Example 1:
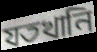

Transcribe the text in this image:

যতখানি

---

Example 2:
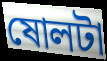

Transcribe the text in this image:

ষোলটা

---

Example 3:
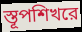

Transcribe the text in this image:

স্তূপশিখরে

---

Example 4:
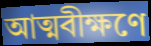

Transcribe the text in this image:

আত্মবীক্ষণে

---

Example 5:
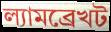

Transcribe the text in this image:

ল্যামব্রেখট